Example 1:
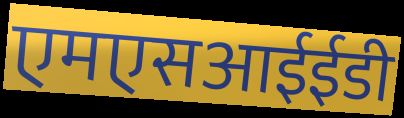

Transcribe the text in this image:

एमएसआईईडी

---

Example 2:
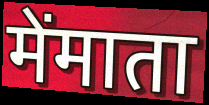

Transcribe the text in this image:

मेंमाता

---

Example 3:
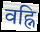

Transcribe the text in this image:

वह्नि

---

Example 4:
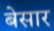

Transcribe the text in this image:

बेसार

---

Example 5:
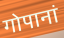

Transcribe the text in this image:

गोपानां